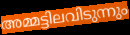
അമ്മട്ടിലവിടുന്നും